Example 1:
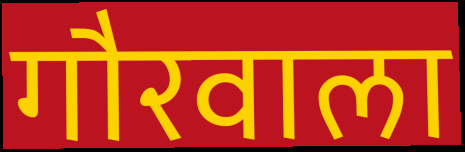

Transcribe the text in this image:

गौरवाला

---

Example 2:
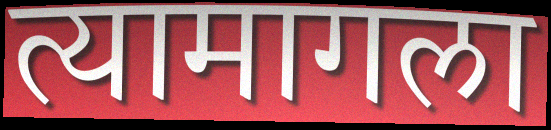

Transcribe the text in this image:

त्यामागला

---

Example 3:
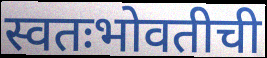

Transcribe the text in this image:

स्वतःभोवतीची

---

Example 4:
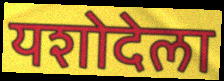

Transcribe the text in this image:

यशोदेला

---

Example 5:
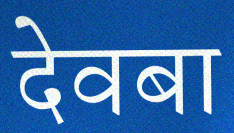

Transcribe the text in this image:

देवबा